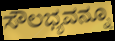
ಸೌಲಭ್ಯವನ್ನೂ